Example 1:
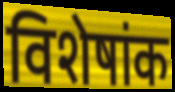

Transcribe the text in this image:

विशेषांक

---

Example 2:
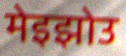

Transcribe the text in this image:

मेइझोउ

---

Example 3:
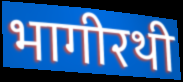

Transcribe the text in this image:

भागीरथी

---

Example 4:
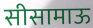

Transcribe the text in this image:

सीसामाऊ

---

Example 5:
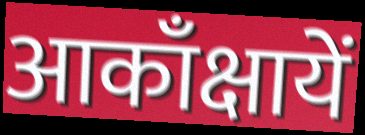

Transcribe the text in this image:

आकाँक्षायें